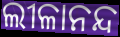
ଲୀଳାନନ୍ଦ